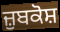
ਜ਼ੁਬਕੋਸ਼